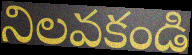
నిలవకండి